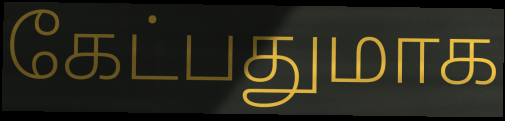
கேட்பதுமாக